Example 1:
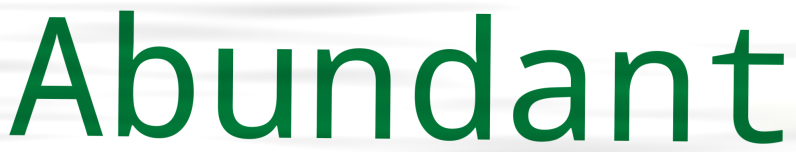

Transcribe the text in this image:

Abundant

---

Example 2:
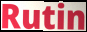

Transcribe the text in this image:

Rutin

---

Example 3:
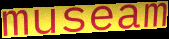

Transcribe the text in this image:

museam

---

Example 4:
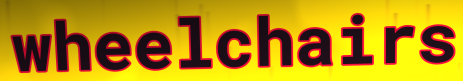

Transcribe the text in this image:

wheelchairs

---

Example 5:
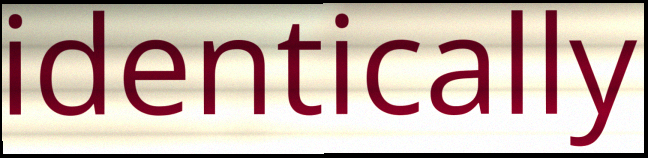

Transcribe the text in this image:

identically